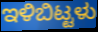
ಇಳಿಬಿಟ್ಟಳು